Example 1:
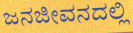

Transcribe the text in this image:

ಜನಜೀವನದಲ್ಲಿ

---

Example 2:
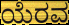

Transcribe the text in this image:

ಯೆರವ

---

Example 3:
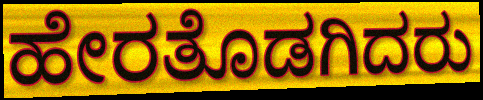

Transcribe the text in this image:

ಹೇರತೊಡಗಿದರು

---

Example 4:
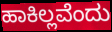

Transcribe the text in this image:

ಹಾಕಿಲ್ಲವೆಂದು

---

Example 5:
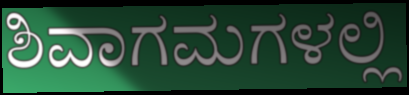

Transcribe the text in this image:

ಶಿವಾಗಮಗಳಲ್ಲಿ